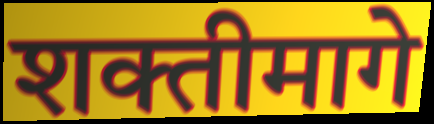
शक्तीमागे